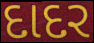
દાદર